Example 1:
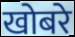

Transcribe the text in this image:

खोबरे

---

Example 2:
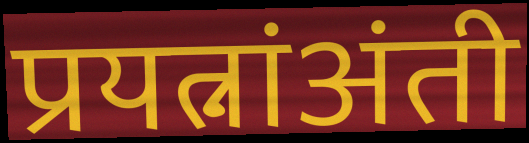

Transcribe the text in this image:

प्रयत्नांअंती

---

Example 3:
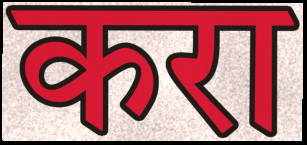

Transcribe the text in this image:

करा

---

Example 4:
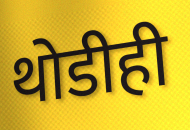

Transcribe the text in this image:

थोडीही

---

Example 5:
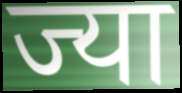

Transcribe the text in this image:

ज्या